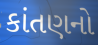
કાંતણનો